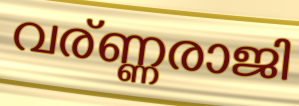
വര്ണ്ണരാജി